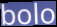
bolo